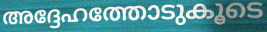
അദ്ദേഹത്തോടുകൂടെ